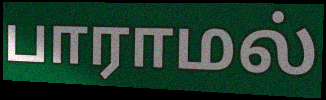
பாராமல்